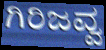
ಗಿರಿಜವ್ವ